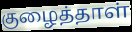
குழைத்தாள்